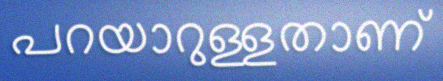
പറയാറുള്ളതാണ്